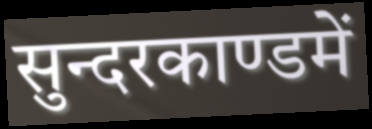
सुन्दरकाण्डमें